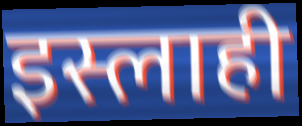
इस्लाही